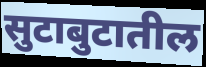
सुटाबुटातील